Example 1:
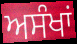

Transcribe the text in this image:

ਅਸੰਖਾਂ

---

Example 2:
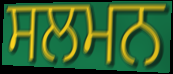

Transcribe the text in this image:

ਸਲਮਨ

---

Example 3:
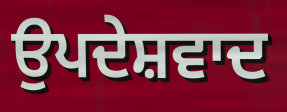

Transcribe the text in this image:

ਉਪਦੇਸ਼ਵਾਦ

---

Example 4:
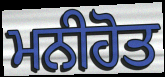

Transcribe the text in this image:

ਮਨੀਹੋਤ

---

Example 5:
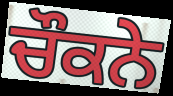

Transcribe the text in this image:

ਚੌਕਨੇ